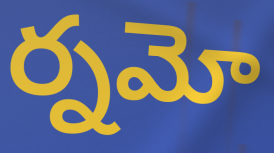
ర్నమో